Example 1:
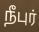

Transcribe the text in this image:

நீபுர்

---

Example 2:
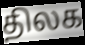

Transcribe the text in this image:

திலக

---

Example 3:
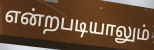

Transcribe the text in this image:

என்றபடியாலும்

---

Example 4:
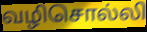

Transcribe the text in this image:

வழிசொல்லி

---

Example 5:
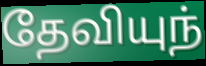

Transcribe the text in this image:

தேவியுந்